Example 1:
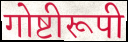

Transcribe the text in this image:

गोष्टीरूपी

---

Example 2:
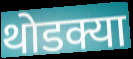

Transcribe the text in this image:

थोडक्या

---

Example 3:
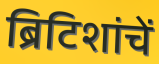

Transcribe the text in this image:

ब्रिटिशांचें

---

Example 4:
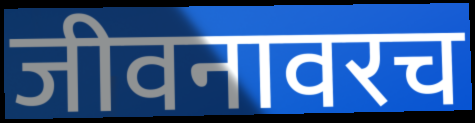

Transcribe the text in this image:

जीवनावरच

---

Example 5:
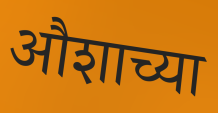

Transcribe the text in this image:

औशाच्या